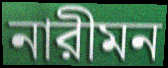
নারীমন